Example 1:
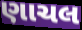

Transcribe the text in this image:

ણાચલ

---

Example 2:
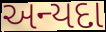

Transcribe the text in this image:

અન્યદા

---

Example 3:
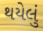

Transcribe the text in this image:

થયેલું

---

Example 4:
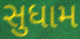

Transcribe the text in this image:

સુધામ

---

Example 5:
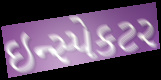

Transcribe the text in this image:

ઇન્સ્પેકટર